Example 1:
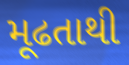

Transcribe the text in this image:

મૂઢતાથી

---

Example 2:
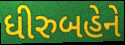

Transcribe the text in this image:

ધીરુબહેને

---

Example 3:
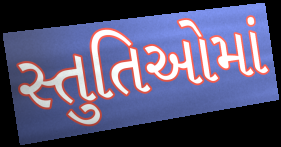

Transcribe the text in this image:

સ્તુતિઓમાં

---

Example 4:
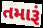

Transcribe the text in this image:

તમારૂં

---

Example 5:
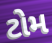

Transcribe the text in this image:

ટોમ